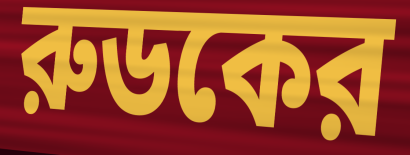
রুডকের